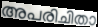
അപരിചിതാ